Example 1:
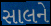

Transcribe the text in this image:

સાલને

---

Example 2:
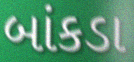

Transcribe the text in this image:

બાંકડા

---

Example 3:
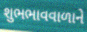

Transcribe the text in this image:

શુભભાવવાળાને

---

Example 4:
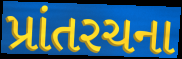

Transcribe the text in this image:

પ્રાંતરચના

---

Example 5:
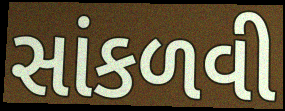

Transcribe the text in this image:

સાંકળવી